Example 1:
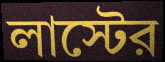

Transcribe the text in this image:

লাস্টের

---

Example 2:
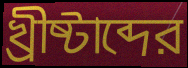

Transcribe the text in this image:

খ্রীষ্টাব্দের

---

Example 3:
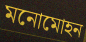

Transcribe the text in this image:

মনোমোহন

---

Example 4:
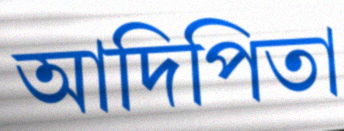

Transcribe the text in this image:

আদিপিতা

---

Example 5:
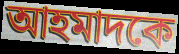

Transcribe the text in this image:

আহমাদকে